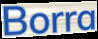
Borra